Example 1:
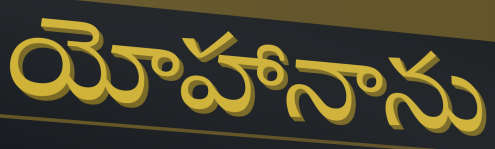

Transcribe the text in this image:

యోహానాను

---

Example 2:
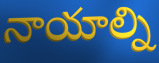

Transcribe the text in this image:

నాయాల్ని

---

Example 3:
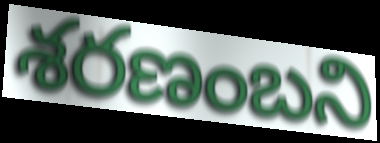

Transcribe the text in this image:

శరణంబని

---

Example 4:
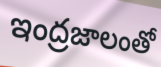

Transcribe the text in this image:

ఇంద్రజాలంతో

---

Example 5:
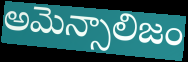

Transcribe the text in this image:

అమెన్సాలిజం